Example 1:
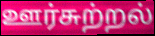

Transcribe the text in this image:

ஊர்சுற்றல்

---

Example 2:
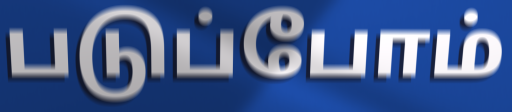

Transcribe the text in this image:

படுப்போம்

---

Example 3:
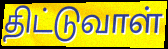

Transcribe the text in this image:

திட்டுவாள்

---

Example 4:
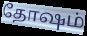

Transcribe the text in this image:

தோஷம்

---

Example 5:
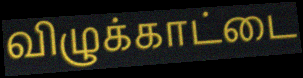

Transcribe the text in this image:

விழுக்காட்டை